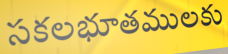
సకలభూతములకు